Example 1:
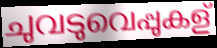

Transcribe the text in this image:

ചുവടുവെപ്പുകള്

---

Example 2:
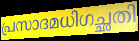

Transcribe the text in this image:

പ്രസാദമധിഗച്ഛതി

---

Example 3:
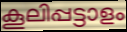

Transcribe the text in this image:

കൂലിപ്പട്ടാളം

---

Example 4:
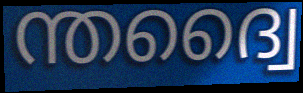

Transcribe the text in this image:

ന്തദ്വൈ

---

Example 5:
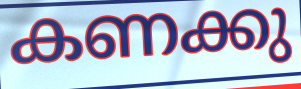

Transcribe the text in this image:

കണക്കു